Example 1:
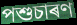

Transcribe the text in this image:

পশুচাৰণ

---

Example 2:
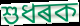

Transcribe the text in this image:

শুধৰক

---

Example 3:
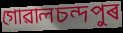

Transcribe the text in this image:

গোৱালচন্দপুৰ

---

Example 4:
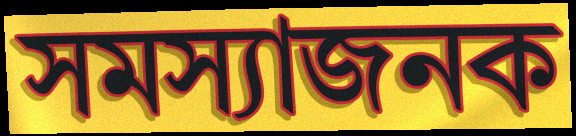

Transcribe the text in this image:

সমস্যাজনক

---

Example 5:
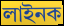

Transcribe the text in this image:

লাইনক